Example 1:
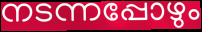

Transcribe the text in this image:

നടന്നപ്പോഴും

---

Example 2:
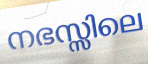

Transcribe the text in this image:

നഭസ്സിലെ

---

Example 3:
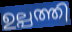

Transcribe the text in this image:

ഉല്പത്തി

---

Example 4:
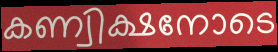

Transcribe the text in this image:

കണ്വിക്ഷനോടെ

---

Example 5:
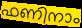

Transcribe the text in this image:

ഫണിനാം